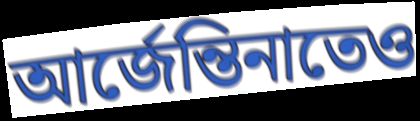
আর্জেন্তিনাতেও